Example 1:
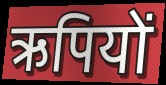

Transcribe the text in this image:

ऋपियों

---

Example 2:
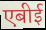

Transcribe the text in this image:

एबीई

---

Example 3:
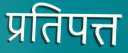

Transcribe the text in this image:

प्रतिपत्त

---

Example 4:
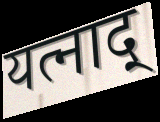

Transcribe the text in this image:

यत्नाद्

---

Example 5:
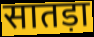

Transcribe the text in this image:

सातड़ा